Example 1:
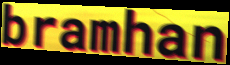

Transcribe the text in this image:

bramhan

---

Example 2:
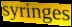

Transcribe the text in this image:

syringes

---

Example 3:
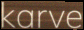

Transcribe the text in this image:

karve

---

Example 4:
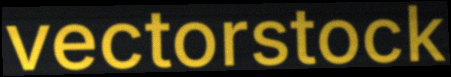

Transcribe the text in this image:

vectorstock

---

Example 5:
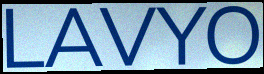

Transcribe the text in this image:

LAVYO